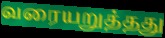
வரையறுத்தது